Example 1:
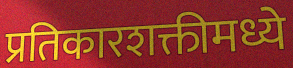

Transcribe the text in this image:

प्रतिकारशक्तीमध्ये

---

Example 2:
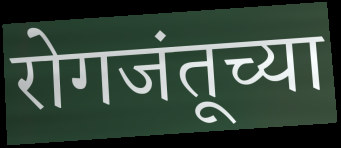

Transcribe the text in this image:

रोगजंतूच्या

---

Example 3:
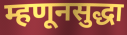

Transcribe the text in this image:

म्हणूनसुद्धा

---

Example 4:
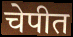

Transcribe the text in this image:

चेपीत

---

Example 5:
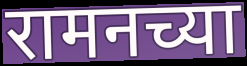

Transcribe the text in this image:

रामनच्या